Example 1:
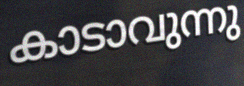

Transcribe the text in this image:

കാടാവുന്നു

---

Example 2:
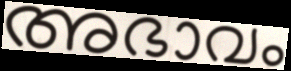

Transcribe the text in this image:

അഭാവം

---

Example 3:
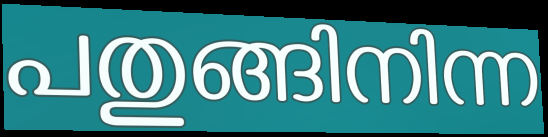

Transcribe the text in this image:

പതുങ്ങിനിന്ന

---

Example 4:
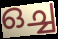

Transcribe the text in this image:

ഒച്ച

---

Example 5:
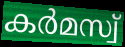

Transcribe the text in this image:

കർമസ്വ്